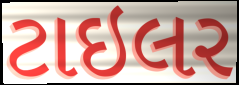
ટાઇલર